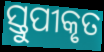
ସ୍ତୁପୀକୃତ